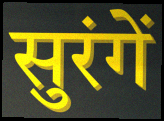
सुरंगें